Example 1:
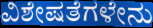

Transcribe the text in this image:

ವಿಶೇಷತೆಗಳೇನು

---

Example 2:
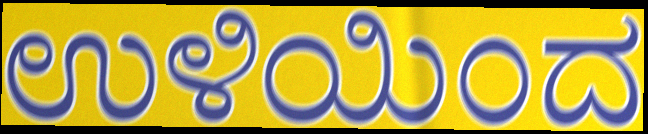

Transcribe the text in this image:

ಉಳಿಯಿಂದ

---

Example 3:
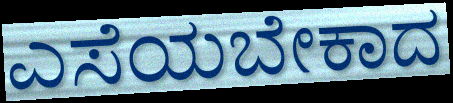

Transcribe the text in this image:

ಎಸೆಯಬೇಕಾದ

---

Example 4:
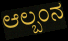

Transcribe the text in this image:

ಆಲ್ಬಂನ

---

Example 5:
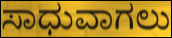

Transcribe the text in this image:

ಸಾಧುವಾಗಲು